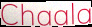
Chaala